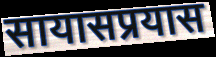
सायासप्रयास